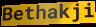
Bethakji